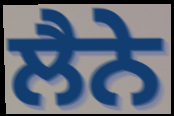
ਲੈਨੇ